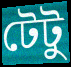
টেটু